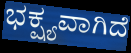
ಭಕ್ಷ್ಯವಾಗಿದೆ